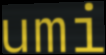
umi